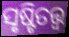
ସୃଷ୍ଟିତତ୍ତ୍ୱ